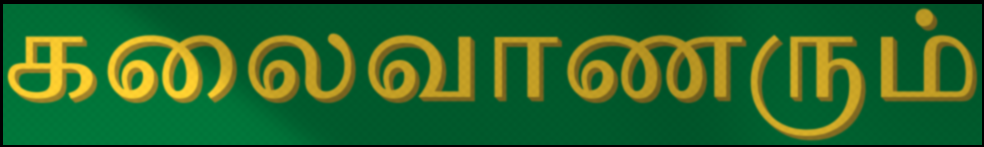
கலைவாணரும்